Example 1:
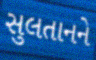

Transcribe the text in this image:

સુલતાનને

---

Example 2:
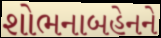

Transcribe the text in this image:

શોભનાબહેનને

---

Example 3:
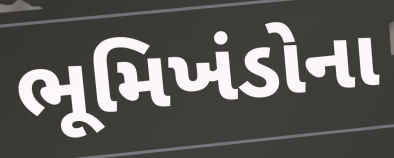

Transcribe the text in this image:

ભૂમિખંડોના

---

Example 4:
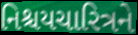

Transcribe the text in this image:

નિશ્ચયચારિત્રને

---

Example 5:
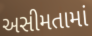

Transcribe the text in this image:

અસીમતામાં